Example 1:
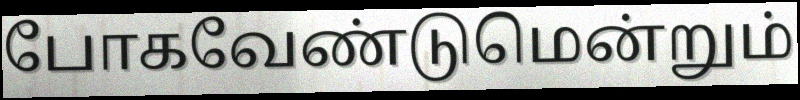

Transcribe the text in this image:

போகவேண்டுமென்றும்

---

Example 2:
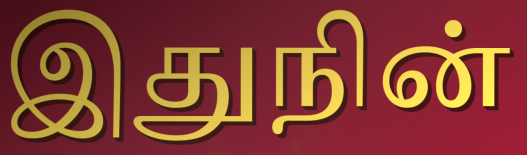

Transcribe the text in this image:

இதுநின்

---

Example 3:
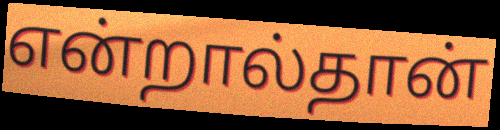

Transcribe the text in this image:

என்றால்தான்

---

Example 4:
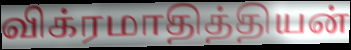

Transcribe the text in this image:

விக்ரமாதித்தியன்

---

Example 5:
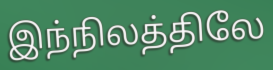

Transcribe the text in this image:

இந்நிலத்திலே